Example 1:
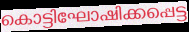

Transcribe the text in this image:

കൊട്ടിഘോഷിക്കപ്പെട്ട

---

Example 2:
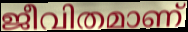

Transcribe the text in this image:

ജീവിതമാണ്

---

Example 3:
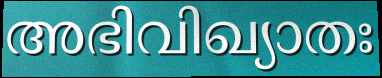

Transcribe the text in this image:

അഭിവിഖ്യാതഃ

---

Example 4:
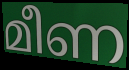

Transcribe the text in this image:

മീണ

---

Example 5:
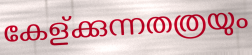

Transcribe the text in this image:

കേള്ക്കുന്നതത്രയും